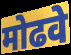
मोढवे